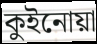
কুইনোয়া